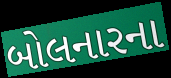
બોલનારના